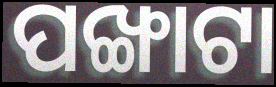
ପଙ୍ଖାଟା